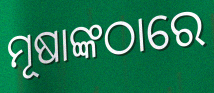
ମୂଷାଙ୍କଠାରେ